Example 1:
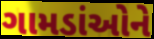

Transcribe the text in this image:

ગામડાંઓને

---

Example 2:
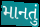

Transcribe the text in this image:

માનતું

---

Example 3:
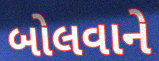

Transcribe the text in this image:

બોલવાને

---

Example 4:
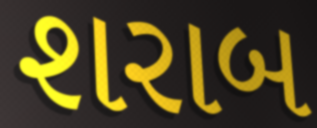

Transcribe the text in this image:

શરાબ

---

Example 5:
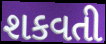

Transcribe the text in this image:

શકવતી